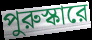
পুরুস্কারে